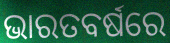
ଭାରତବର୍ଷରେ